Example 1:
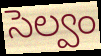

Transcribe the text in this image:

సెల్వం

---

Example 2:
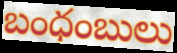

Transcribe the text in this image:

బంధంబులు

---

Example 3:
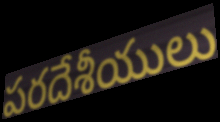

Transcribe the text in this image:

పరదేశీయులు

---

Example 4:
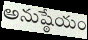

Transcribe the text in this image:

అనుష్ఠేయం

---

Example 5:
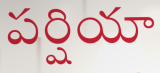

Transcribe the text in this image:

పర్షియా